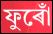
ফুৰোঁ